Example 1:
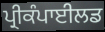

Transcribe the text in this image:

ਪ੍ਰੀਕੰਪਾਈਲਡ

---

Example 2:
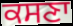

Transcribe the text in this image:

ਕਸਣਾ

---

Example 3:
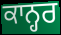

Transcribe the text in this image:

ਕਾਨ੍ਹਰ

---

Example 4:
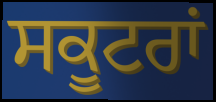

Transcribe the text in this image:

ਸਕੂਟਰਾਂ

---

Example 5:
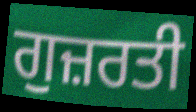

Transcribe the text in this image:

ਗੁਜ਼ਰਤੀ